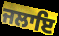
ਜਲਾਇ